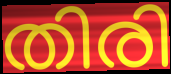
തിരി